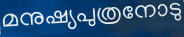
മനുഷ്യപുത്രനോടു